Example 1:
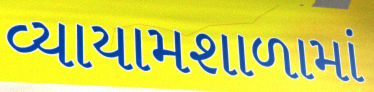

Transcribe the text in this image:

વ્યાયામશાળામાં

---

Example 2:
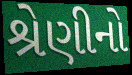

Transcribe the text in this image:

શ્રેણીનો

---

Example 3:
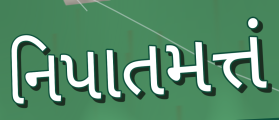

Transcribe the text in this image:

નિપાતમત્તં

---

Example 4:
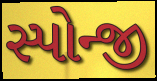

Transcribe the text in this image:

સ્પોન્જી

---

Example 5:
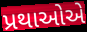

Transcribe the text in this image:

પ્રથાઓએ